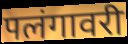
पलंगावरी